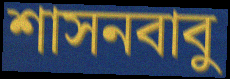
শাসনবাবু